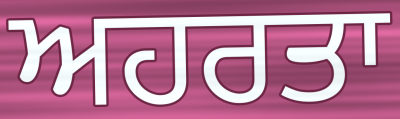
ਅਹਰਤਾ